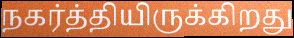
நகர்த்தியிருக்கிறது